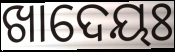
ଖାଦେୟଃ